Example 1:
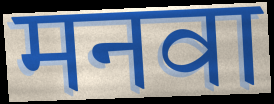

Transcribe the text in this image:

मनवा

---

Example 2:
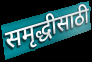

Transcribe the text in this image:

समृद्धीसाठी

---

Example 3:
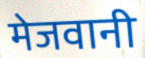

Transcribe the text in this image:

मेजवानी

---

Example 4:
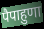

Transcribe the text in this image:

पैपाहुणा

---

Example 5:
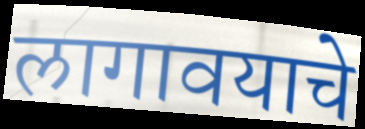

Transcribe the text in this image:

लागावयाचे